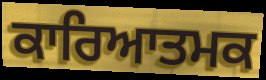
ਕਾਰਿਆਤਮਕ